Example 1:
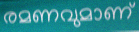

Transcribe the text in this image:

രമണവുമാണ്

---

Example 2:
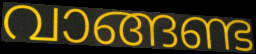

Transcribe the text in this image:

വാങ്ങണ്ട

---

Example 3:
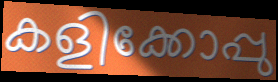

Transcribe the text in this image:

കളിക്കോപ്പു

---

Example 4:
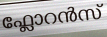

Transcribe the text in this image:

ഫ്ലോറൻസ്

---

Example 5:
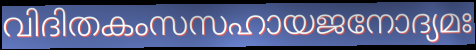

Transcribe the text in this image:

വിദിതകംസസഹായജനോദ്യമഃ